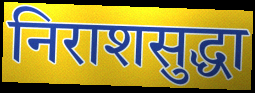
निराशसुद्धा